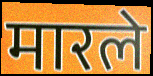
मारले